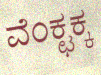
ವೆಂಕ್ಟಕ್ಕ